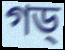
গড্